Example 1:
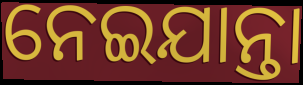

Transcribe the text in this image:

ନେଇଯାନ୍ତା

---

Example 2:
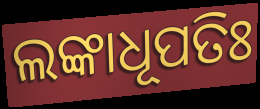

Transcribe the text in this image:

ଲଙ୍କାଧୂପତିଃ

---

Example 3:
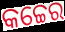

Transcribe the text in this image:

କଚ୍ଚେର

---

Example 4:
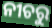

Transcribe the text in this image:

ନୀଚରୁ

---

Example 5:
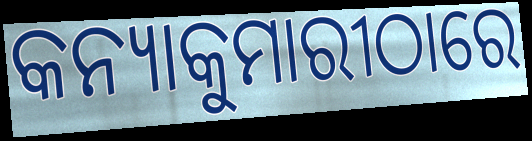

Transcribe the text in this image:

କନ୍ୟାକୁମାରୀଠାରେ